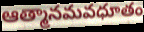
ఆత్మానమవధూతం